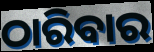
ଠାରିବାର